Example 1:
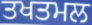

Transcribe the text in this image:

ਤਖਤਮਲ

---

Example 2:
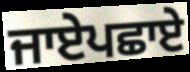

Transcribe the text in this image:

ਜਾਏਪਛਾਏ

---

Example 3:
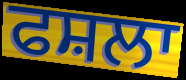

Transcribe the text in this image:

ਫਸ਼ਲਾ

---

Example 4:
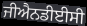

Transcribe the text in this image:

ਜੀਐਨਡੀਈਸੀ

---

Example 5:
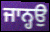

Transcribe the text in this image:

ਜਾਨ੍ਹਉ